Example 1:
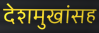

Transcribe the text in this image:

देशमुखांसह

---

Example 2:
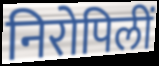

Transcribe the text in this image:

निरोपिलीं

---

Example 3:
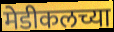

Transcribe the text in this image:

मेडीकलच्या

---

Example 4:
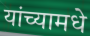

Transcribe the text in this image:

यांच्यामधे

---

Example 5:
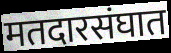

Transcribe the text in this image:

मतदारसंघात